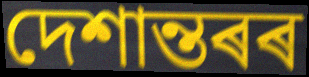
দেশান্তৰৰ